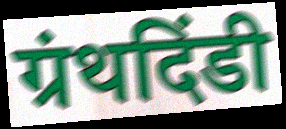
ग्रंथदिंडी